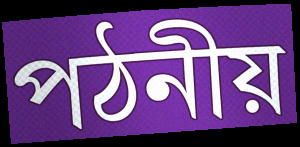
পঠনীয়